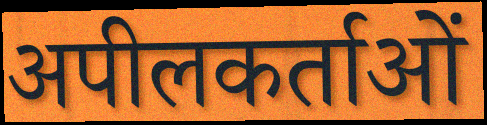
अपीलकर्ताओं